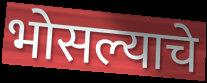
भोसल्याचे